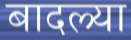
बादल्या